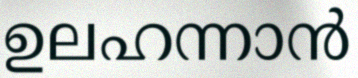
ഉലഹന്നാൻ